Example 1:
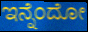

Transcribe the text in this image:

ಇನ್ನೆಂದೋ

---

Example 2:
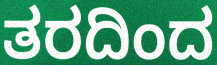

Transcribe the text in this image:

ತರದಿಂದ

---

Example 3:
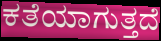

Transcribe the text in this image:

ಕತೆಯಾಗುತ್ತದೆ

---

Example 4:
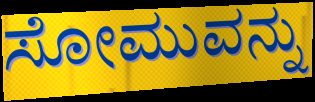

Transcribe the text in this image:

ಸೋಮುವನ್ನು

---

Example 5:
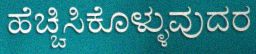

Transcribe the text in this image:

ಹೆಚ್ಚಿಸಿಕೊಳ್ಳುವುದರ